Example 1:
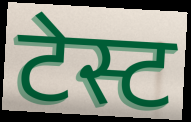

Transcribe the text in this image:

टेस्‍ट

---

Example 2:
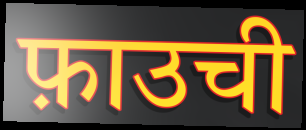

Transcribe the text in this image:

फ़ाउची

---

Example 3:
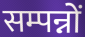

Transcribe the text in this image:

सम्पन्नों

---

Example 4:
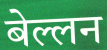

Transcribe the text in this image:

बेल्लन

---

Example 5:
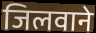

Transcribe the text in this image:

जिलवाने